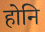
होनि